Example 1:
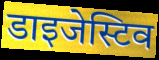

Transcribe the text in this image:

डाइजेस्टिव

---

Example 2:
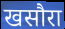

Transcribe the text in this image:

खसौरा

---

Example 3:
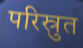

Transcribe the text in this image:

परिस्रुत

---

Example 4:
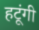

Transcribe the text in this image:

हटूंगी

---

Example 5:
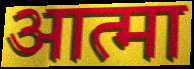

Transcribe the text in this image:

आत्‍मा